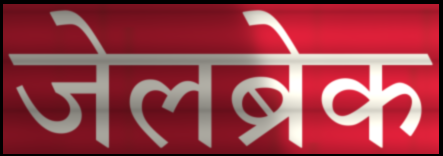
जेलब्रेक